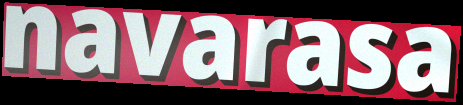
navarasa